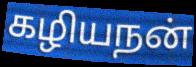
கழியநன்